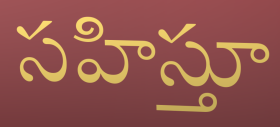
సహిస్తూ